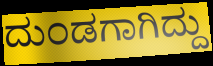
ದುಂಡಗಾಗಿದ್ದು